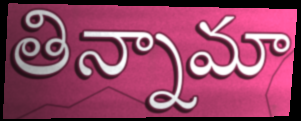
తిన్నామా